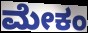
ಮೇಕಂ